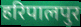
हरिपालपुर